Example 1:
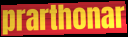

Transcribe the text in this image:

prarthonar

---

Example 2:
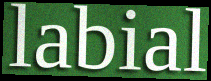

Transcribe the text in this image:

labial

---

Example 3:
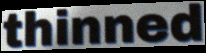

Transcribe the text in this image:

thinned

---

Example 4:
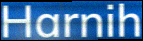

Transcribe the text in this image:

Harnih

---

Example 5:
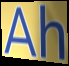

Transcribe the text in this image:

Ah